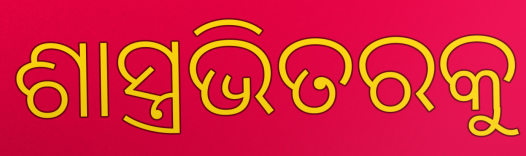
ଶାସ୍ତ୍ରଭିତରକୁ